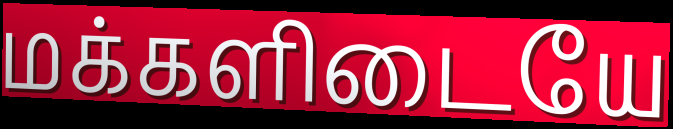
மக்களிடையே